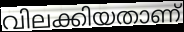
വിലക്കിയതാണ്